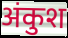
अंकुश